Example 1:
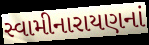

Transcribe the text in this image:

સ્વામીનારાયણનાં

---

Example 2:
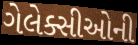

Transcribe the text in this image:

ગેલેક્સીઓની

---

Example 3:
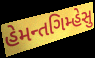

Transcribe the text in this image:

હેમન્તગિમ્હેસુ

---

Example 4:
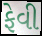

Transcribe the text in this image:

ફેવી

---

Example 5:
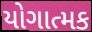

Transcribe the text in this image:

યોગાત્મક